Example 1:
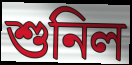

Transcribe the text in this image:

শুনিল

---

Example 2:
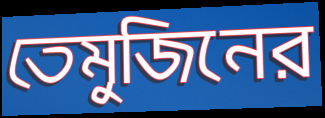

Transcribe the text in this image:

তেমুজিনের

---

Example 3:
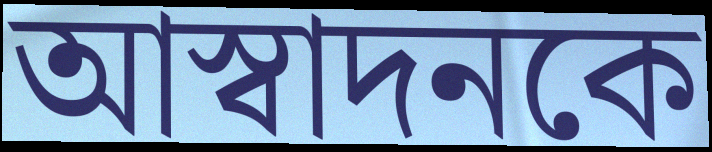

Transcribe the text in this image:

আস্বাদনকে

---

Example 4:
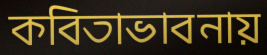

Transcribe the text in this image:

কবিতাভাবনায়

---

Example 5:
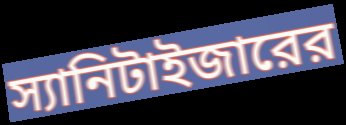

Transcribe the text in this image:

স্যানিটাইজারের